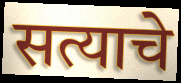
सत्याचे